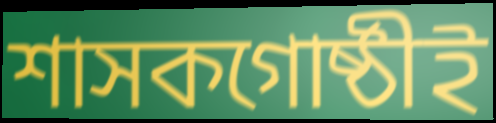
শাসকগোষ্ঠীই